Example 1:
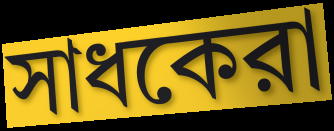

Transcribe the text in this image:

সাধকেরা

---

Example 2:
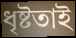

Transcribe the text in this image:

ধৃষ্টতাই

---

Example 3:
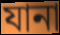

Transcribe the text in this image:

যানা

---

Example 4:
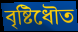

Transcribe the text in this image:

বৃষ্টিধৌত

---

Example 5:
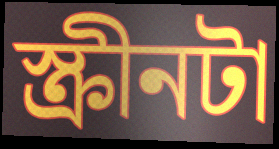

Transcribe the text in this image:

স্ক্রীনটা